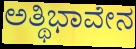
ಅತ್ಥಿಭಾವೇನ